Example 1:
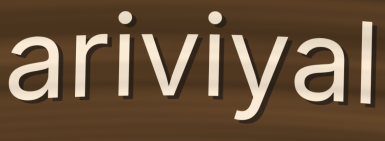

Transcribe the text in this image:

ariviyal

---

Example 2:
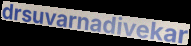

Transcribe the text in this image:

drsuvarnadivekar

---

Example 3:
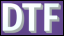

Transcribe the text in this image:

DTF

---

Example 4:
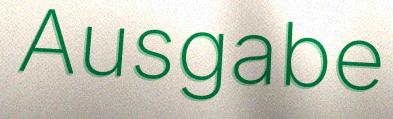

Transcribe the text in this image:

Ausgabe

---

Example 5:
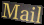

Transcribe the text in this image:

Mail